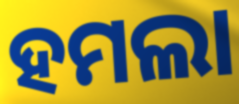
ହମଲା